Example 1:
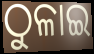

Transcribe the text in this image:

ଠୁଳାଇ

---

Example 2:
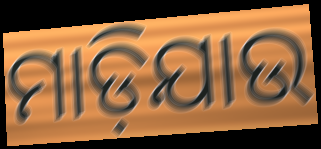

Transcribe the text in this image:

ମାଡ଼ିଯାଉ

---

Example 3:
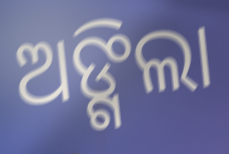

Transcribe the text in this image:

ଅଙ୍ଗିଲା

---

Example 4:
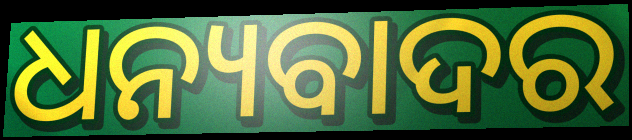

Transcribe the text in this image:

ଧନ୍ୟବାଦର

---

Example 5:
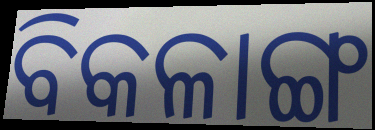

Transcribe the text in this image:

ବିକଳାଙ୍ଗ